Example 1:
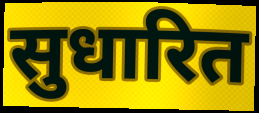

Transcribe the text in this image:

सुधारित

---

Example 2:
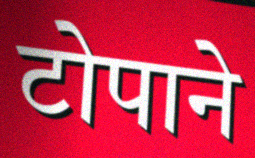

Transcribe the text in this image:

टोपाने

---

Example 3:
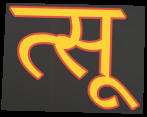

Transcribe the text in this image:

त्सू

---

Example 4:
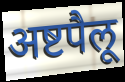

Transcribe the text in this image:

अष्टपैलू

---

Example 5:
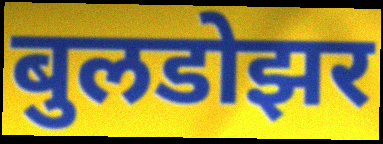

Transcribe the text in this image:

बुलडोझर